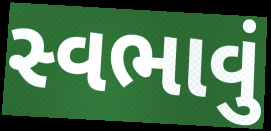
સ્વભાવું